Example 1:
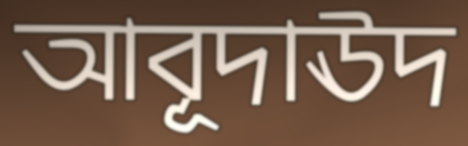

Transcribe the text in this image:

আবূদাঊদ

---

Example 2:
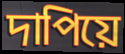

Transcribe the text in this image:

দাপিয়ে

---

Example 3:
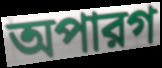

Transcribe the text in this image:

অপারগ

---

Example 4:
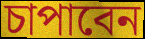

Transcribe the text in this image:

চাপাবেন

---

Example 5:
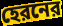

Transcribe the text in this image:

হেরনের